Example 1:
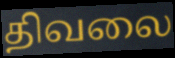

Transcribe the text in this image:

திவலை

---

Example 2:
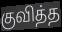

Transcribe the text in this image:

குவித்த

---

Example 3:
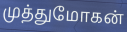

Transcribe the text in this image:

முத்துமோகன்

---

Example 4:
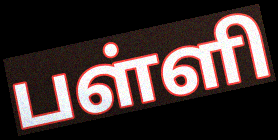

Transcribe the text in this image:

பள்ளி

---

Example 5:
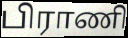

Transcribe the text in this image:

பிராணி